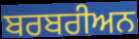
ਬਰਬਰੀਅਨ